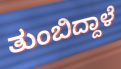
ತುಂಬಿದ್ದಾಳೆ